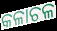
କଳାଚଳ